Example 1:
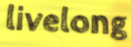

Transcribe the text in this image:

livelong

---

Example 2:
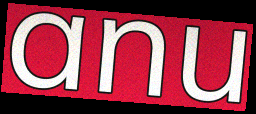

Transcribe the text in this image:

anu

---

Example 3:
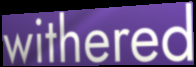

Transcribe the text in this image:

withered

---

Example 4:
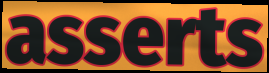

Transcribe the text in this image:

asserts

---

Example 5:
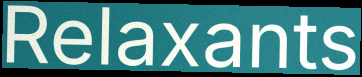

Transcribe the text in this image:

Relaxants